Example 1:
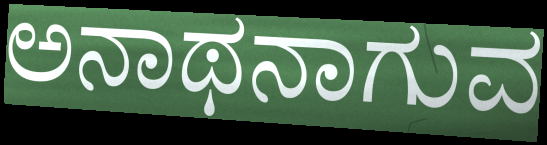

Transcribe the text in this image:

ಅನಾಥನಾಗುವ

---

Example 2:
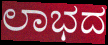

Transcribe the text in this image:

ಲಾಭದ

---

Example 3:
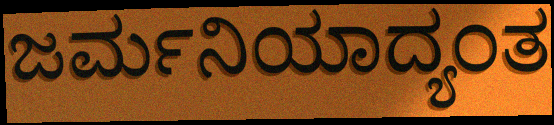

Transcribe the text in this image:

ಜರ್ಮನಿಯಾದ್ಯಂತ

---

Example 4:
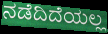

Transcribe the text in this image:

ನಡೆದಿದೆಯಲ್ಲ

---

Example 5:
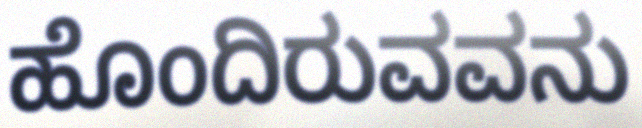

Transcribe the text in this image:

ಹೊಂದಿರುವವನು